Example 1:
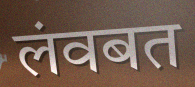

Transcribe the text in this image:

लंवबत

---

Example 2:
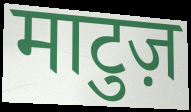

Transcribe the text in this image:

माटुज़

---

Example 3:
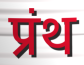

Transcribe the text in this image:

प्रंथ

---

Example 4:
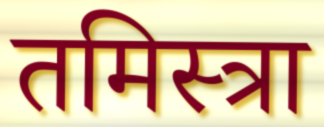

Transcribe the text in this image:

तमिस्त्रा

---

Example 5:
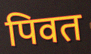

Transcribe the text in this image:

पिवत